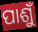
ପାଶୁଁ